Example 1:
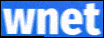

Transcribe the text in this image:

wnet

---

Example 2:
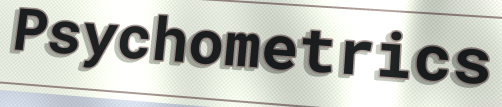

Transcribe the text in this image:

Psychometrics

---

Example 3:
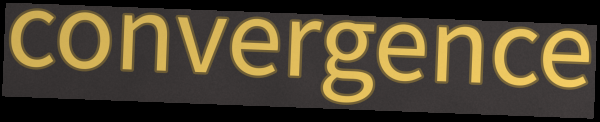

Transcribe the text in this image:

convergence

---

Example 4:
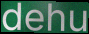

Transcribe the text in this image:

dehu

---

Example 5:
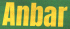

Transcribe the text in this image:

Anbar